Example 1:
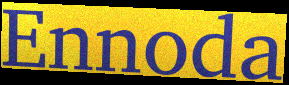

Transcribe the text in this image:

Ennoda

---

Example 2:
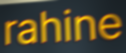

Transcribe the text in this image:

rahine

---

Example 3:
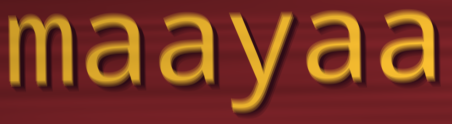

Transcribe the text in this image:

maayaa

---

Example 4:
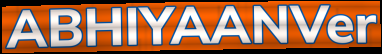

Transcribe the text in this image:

ABHIYAANVer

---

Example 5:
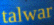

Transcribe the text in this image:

talwar